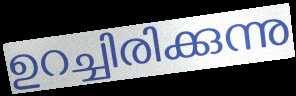
ഉറച്ചിരിക്കുന്നു